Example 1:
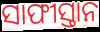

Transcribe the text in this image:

ସାଫୀସ୍ତାନ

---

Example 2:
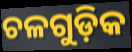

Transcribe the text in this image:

ଚଳଗୁଡ଼ିକ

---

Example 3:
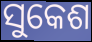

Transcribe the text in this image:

ସୁକେଶ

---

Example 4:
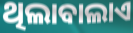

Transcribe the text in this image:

ଥିଲାବାଲାଏ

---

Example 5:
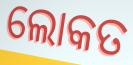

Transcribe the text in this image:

ଲୋକତ